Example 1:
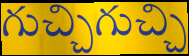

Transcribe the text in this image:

గుచ్చిగుచ్చి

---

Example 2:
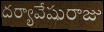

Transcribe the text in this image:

దర్యావేషురాజు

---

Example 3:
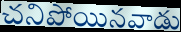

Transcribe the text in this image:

చనిపోయినవాడు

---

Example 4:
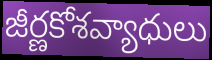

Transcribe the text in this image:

జీర్ణకోశవ్యాధులు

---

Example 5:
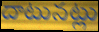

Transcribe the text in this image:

దాటునట్లు